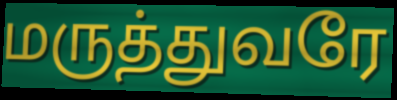
மருத்துவரே